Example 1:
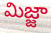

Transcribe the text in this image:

మిజ్జా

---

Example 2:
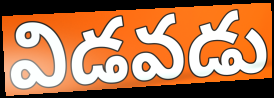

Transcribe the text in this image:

విడవడు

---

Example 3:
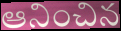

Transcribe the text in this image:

ఆనించిన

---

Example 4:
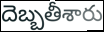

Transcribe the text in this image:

దెబ్బతీశారు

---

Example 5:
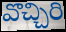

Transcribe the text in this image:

వొచ్చిరి